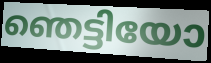
ഞെട്ടിയോ